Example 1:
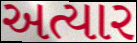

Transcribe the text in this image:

અત્યાર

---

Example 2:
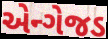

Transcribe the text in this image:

એન્ગેજડ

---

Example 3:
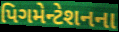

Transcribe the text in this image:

પિગમેન્ટેશનના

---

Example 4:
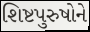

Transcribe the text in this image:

શિષ્ટપુરુષોને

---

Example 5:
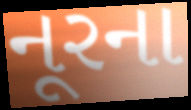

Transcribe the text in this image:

નૂરના